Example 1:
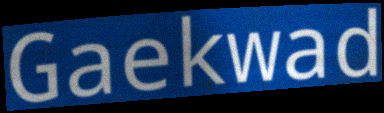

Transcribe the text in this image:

Gaekwad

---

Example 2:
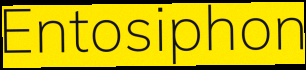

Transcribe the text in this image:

Entosiphon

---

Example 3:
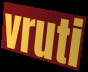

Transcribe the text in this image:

vruti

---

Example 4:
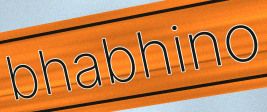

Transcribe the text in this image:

bhabhino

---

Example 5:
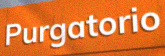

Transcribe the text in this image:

Purgatorio